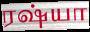
ரஷ்யா